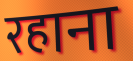
रहाना